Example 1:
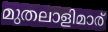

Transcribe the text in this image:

മുതലാളിമാര്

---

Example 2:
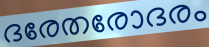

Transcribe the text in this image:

ദരേതരോദരം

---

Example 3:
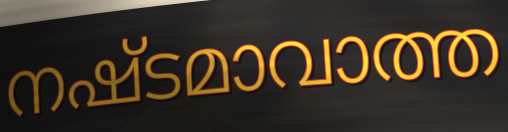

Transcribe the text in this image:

നഷ്ടമാവാത്ത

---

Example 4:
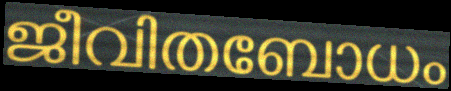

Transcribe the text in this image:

ജീവിതബോധം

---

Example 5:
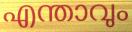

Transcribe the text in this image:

എന്താവും